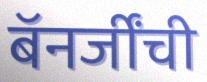
बॅनर्जींची